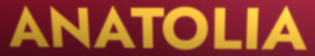
ANATOLIA